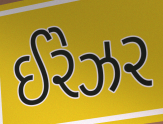
ઈરેઝર